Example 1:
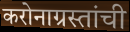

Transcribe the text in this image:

करोनाग्रस्तांची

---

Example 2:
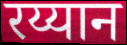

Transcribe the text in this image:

रय्यान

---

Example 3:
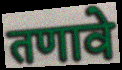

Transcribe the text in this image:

तणावे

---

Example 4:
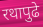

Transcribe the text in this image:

रथापुढे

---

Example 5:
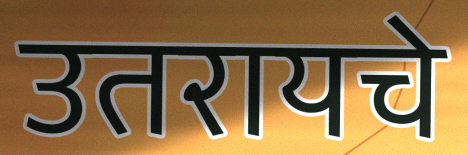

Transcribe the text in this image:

उतरायचे